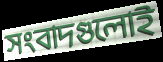
সংবাদগুলোই